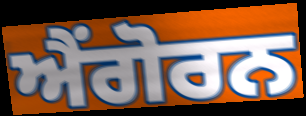
ਐਂਗੋਰਨ